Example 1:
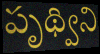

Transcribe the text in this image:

పృథ్విని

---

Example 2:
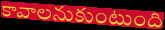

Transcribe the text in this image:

కావాలనుకుంటుంది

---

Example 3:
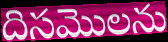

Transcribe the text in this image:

దిసమొలను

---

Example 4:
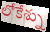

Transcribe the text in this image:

లోకేశ్ను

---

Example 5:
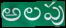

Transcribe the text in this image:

అలపు